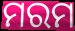
ମରମ